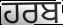
ਹਰਬ